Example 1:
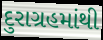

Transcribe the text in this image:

દુરાગ્રહમાંથી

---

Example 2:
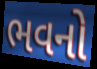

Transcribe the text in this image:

ભવનો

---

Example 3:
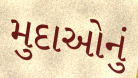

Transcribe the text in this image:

મુદાઓનું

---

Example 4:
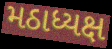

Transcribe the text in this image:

મઠાધ્યક્ષ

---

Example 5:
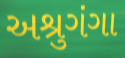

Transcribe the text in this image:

અશ્રુગંગા